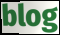
blog